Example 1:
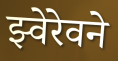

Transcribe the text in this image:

झ्वेरेवने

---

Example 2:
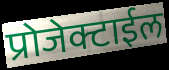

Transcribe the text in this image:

प्रोजेक्टाईल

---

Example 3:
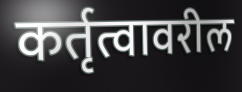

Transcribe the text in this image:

कर्तृत्वावरील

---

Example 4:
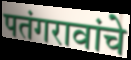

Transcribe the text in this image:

पतंगरावांचे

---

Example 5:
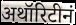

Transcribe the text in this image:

अथॉरिटीनं